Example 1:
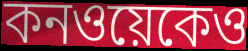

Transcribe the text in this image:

কনওয়েকেও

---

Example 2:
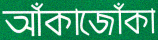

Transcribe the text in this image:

আঁকাজোঁকা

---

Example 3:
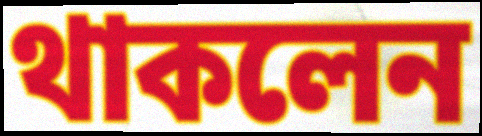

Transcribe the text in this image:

থাকলেন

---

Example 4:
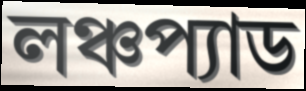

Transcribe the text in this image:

লঞ্চপ্যাড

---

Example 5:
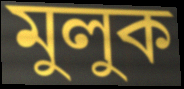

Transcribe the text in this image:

মুলুক